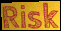
Risk